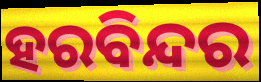
ହରବିନ୍ଦର